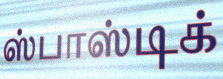
ஸ்பாஸ்டிக்